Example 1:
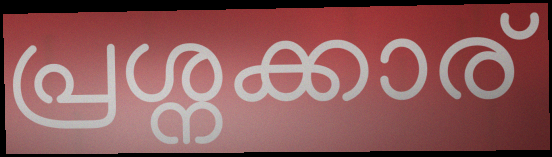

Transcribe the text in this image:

പ്രശ്നക്കാര്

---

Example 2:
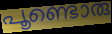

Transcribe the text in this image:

പൂണ്ടൊരു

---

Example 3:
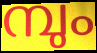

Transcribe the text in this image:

മ്പും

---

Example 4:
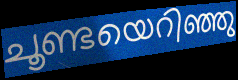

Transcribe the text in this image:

ചൂണ്ടയെറിഞ്ഞു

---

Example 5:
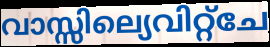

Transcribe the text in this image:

വാസ്സില്യെവിറ്റ്ചേ